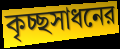
কৃচ্ছসাধনের